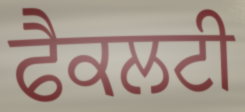
ਫੈਕਲਟੀ